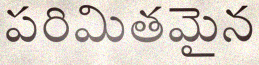
పరిమితమైన